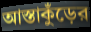
আস্তাকুঁড়ের